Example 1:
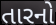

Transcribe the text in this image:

તારનો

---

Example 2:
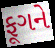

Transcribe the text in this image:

ફૂગને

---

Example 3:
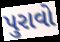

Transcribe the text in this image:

પુરાવો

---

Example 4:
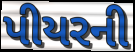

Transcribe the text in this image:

પીયરની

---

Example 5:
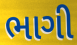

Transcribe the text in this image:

ભાગી